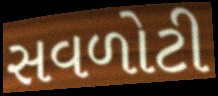
સવળોટી